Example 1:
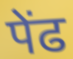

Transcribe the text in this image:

पेंढ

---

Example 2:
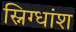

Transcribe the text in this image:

स्निग्धांश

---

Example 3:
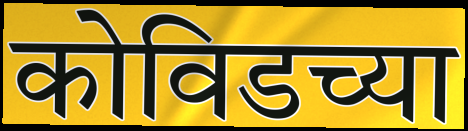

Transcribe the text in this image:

कोविडच्या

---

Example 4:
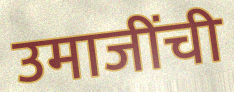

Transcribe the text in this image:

उमाजींची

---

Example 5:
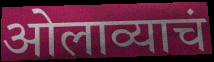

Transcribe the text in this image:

ओलाव्याचं